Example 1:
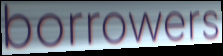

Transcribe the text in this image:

borrowers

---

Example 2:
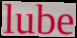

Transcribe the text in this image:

lube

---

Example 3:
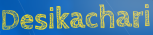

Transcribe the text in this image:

Desikachari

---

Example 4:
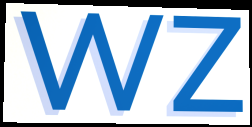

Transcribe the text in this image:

WZ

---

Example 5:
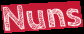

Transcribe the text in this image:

Nuns